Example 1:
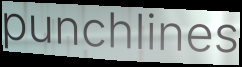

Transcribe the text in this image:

punchlines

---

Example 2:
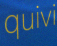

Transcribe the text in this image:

quivi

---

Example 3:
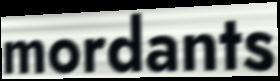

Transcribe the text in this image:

mordants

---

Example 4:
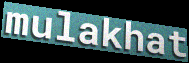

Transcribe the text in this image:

mulakhat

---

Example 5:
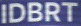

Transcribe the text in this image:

IDBRT